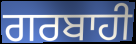
ਗਰਬਾਹੀ